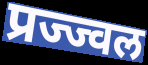
प्रज्ज्वल